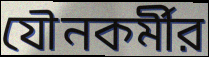
যৌনকর্মীর